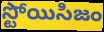
స్టోయిసిజం